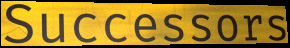
Successors